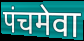
पंचमेवा